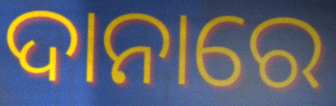
ଦାନାରେ